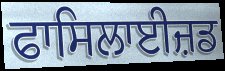
ਫਾਸਿਲਾਈਜ਼ਡ